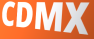
CDMX